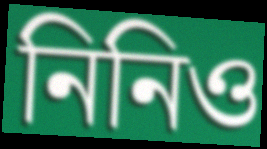
নিনিও